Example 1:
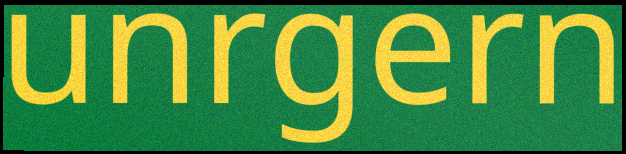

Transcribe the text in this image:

unrgern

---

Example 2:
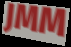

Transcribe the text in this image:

JMM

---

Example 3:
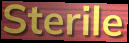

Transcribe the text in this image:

Sterile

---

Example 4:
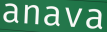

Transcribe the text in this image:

anava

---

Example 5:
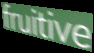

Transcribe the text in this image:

fruitive